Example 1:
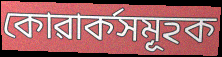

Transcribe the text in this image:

কোৱাৰ্কসমূহক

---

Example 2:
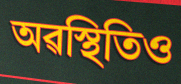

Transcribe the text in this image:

অৱস্থিতিও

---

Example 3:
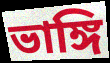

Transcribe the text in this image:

ভাঙ্গি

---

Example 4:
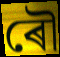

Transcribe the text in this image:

ৰৌ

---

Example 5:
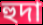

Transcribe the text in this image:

হুদা